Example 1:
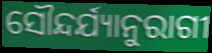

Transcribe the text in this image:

ସୌନ୍ଦର୍ଯ୍ୟାନୁରାଗୀ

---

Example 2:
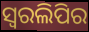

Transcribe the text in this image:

ସ୍ୱରଲିପିର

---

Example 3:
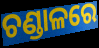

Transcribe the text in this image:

ଚଣ୍ଡାଳରେ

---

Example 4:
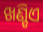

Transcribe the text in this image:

ଖଣ୍ଡିଏ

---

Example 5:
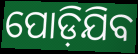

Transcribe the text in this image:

ପୋଡ଼ିଯିବ